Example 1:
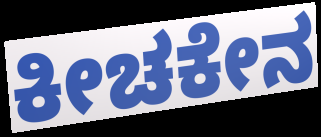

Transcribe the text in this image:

ಕೀಚಕೇನ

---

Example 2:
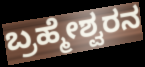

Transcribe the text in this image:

ಬ್ರಹ್ಮೇಶ್ವರನ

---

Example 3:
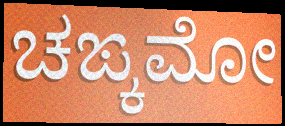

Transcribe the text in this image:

ಚಙ್ಕಮೋ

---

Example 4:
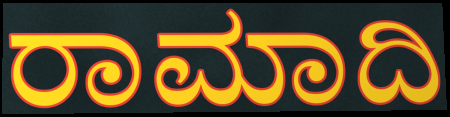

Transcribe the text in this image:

ರಾಮಾದಿ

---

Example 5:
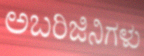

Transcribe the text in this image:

ಅಬರಿಜಿನಿಗಳು